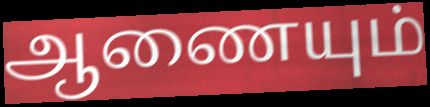
ஆணையும்